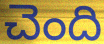
చెంది